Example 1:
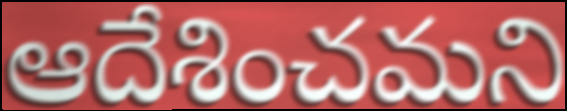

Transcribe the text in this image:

ఆదేశించమని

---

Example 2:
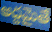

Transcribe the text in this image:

అద్దమైతే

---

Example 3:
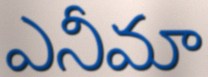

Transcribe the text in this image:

ఎనీమా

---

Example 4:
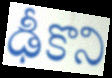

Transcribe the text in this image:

ఢీకొని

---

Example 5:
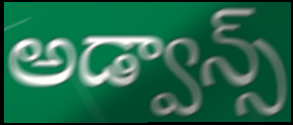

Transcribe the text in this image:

అడ్వాన్స్